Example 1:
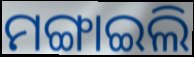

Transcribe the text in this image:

ମଙ୍ଗାଇଲି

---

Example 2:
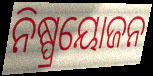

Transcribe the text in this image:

ନିଷ୍ପ୍ରୟୋଜନ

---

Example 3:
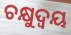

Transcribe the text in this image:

ଚକ୍ଷୁଦ୍ୱୟ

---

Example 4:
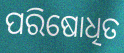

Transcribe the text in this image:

ପରିଷୋଧିତ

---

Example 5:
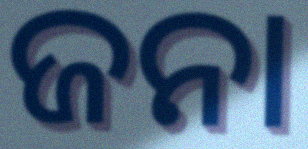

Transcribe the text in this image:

ଜନା